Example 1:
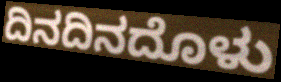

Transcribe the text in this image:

ದಿನದಿನದೊಳು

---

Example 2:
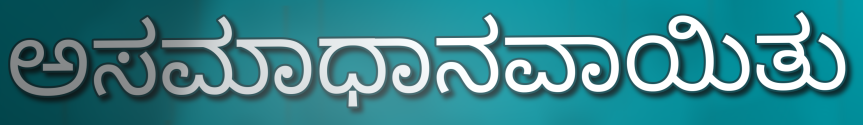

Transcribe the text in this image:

ಅಸಮಾಧಾನವಾಯಿತು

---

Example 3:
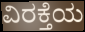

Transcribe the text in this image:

ವಿರಕ್ತೆಯ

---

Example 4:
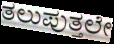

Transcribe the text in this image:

ತಲುಪುತ್ತಲೇ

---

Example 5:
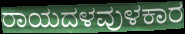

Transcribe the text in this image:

ರಾಯದಳವುಳಕಾರ